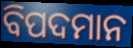
ବିପଦମାନ